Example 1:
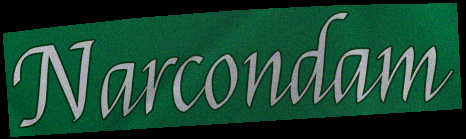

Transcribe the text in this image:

Narcondam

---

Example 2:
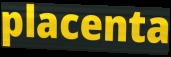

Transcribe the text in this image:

placenta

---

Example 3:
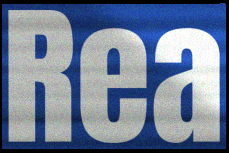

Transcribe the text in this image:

Rea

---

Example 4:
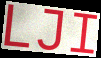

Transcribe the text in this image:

LJI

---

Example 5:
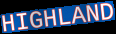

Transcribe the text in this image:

HIGHLAND